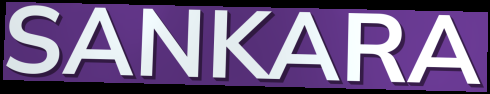
SANKARA